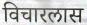
विचारलास